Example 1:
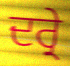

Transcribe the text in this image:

ਦਰ੍ਰੇ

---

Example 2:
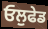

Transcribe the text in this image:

ਓਲੁਫੇਡ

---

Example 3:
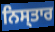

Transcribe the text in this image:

ਨਿਸ੍ਤਾਰ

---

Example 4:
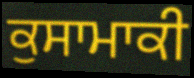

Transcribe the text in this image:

ਕੁਸਾਮਾਕੀ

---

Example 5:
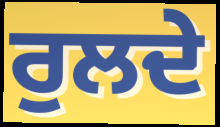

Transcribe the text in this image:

ਰੁਲਦੇ